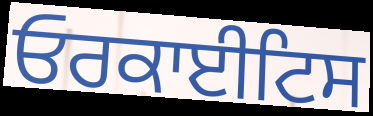
ਓਰਕਾਈਟਿਸ